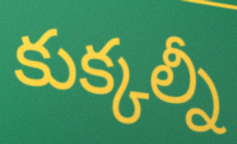
కుక్కల్నీ